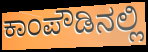
ಕಾಂಪೌಡಿನಲ್ಲಿ